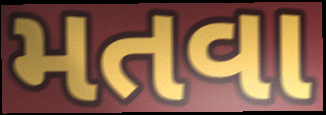
મતવા